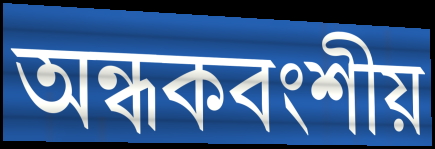
অন্ধকবংশীয়